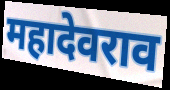
महादेवराव